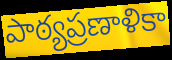
పాఠ్యప్రణాళికా